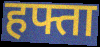
हफ्ता